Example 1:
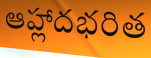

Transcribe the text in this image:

ఆహ్లాదభరిత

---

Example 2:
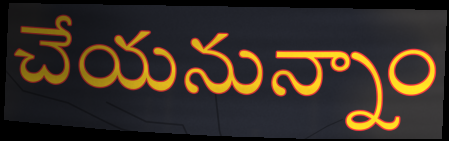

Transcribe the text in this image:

చేయనున్నాం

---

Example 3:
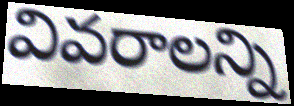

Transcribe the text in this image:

వివరాలన్ని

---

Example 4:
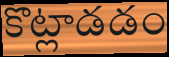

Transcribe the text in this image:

కొట్లాడడం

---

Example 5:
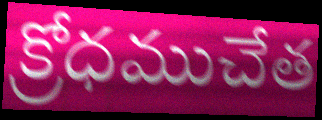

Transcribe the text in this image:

క్రోధముచేత